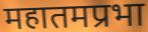
महातमप्रभा